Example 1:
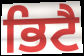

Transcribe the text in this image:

ਭਿਟੈ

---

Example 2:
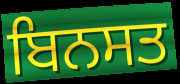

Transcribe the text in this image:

ਬਿਨਸਤ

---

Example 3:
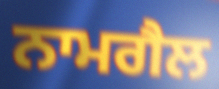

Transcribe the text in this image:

ਨਾਮਗੈਲ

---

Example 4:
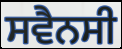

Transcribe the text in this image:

ਸਵੈਨਸੀ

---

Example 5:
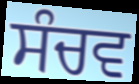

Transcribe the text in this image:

ਸੰਚਵ